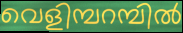
വെളിമ്പറമ്പിൽ